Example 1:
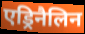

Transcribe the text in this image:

एड्रिनैलिन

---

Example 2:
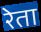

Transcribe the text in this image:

रेता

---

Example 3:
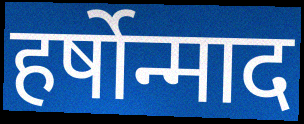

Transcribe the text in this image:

हर्षोन्माद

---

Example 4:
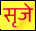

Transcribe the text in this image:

सृजे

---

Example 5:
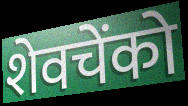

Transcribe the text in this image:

शेवचेंको